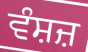
ਵੰਸ਼ਜ਼